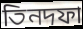
তিনদফা